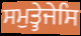
ਸਮੁਤ੍ਤੇਜੇਸਿ